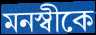
মনস্বীকে